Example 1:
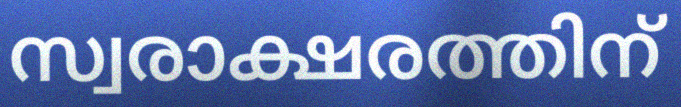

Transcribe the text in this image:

സ്വരാക്ഷരത്തിന്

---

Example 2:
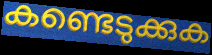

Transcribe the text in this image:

കണ്ടെടുക്കുക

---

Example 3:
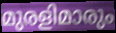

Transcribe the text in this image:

മുരളിമാരും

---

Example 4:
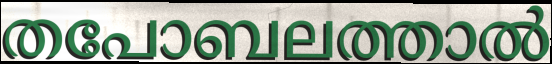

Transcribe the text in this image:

തപോബലത്താൽ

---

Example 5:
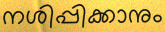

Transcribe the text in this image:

നശിപ്പിക്കാനും